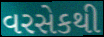
વરસેકથી